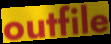
outfile